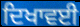
ਦਿਖਾਵਈ